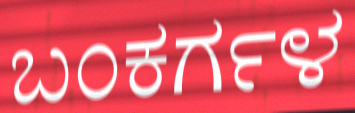
ಬಂಕರ್ಗಳ